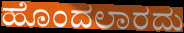
ಹೊಂದಲಾರದು